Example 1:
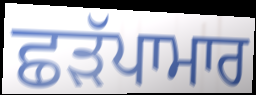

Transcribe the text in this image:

ਛੜੱਪਾਮਾਰ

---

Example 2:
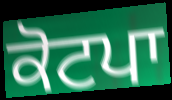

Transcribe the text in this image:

ਕੋਟਪਾ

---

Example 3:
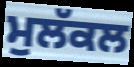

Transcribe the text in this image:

ਮੁਲੱਕਲ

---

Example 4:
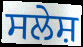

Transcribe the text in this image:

ਸਲੇਸ਼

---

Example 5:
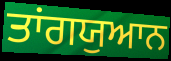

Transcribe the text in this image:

ਤਾਂਗਯੁਆਨ